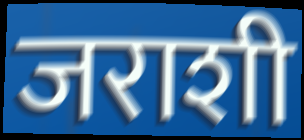
जराशी